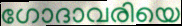
ഗോദാവരിയെ